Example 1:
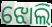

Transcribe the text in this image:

ଝୋଲି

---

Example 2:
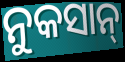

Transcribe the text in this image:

ନୁକସାନ୍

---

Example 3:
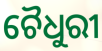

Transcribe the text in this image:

ଚୈଧୁରୀ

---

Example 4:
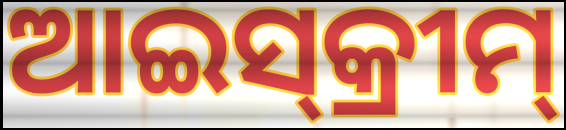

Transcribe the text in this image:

ଆଇସ୍‌କ୍ରୀମ୍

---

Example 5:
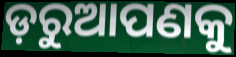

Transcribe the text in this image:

ଡ଼ରୁଆପଣକୁ